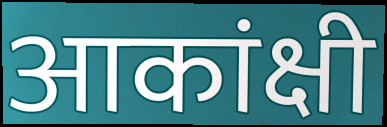
आकांक्षी